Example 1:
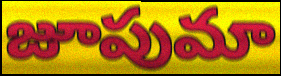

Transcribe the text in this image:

జూపుమా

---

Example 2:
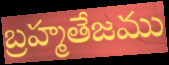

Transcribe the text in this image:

బ్రహ్మతేజము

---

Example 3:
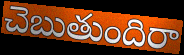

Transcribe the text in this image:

చెబుతుందిరా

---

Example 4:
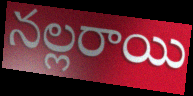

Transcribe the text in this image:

నల్లరాయి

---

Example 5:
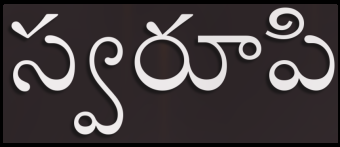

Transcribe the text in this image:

స్వరూపి